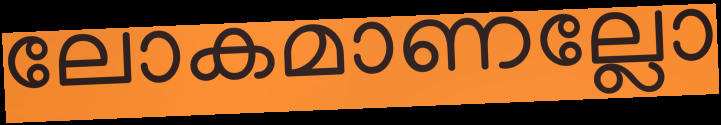
ലോകമാണല്ലോ